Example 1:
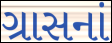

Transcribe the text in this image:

ગ્રાસનાં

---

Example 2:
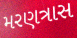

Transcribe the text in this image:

મરણત્રાસ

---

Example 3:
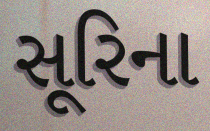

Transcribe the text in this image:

સૂરિના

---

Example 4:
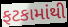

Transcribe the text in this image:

ફટકામાંથી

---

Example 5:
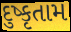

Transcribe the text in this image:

દુષ્કૃતામ